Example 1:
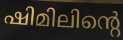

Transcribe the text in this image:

ഷിമിലിന്റെ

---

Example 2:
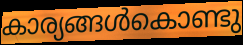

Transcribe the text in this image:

കാര്യങ്ങൾകൊണ്ടു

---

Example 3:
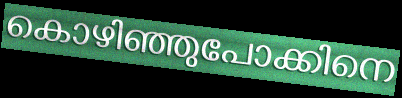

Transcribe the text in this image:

കൊഴിഞ്ഞുപോക്കിനെ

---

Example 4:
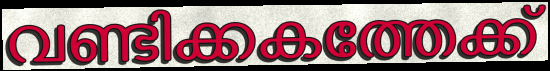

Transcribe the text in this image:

വണ്ടിക്കകത്തേക്ക്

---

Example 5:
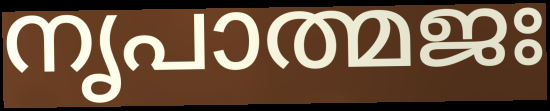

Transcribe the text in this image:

നൃപാത്മജഃ